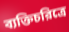
ব্যক্তিচরিত্রে